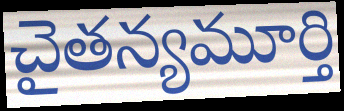
చైతన్యమూర్తి